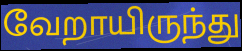
வேறாயிருந்து